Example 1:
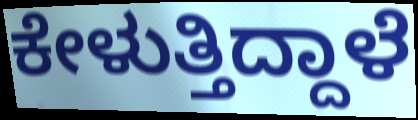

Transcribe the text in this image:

ಕೇಳುತ್ತಿದ್ದಾಳೆ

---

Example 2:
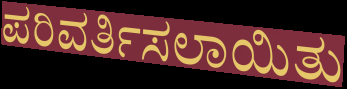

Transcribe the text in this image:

ಪರಿವರ್ತಿಸಲಾಯಿತು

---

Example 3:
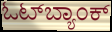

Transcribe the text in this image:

ಓಟ್‌ಬ್ಯಾಂಕ್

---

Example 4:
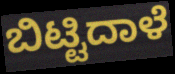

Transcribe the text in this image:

ಬಿಟ್ಟಿದಾಳೆ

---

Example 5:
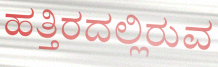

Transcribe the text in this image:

ಹತ್ತಿರದಲ್ಲಿರುವ